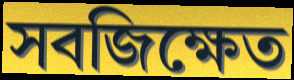
সবজিক্ষেত